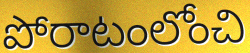
పోరాటంలోంచి